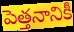
పెత్తనానికీ